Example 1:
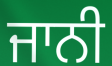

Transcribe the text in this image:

ਜਾਨੀ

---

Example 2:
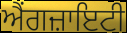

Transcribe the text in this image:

ਐਂਗਜ਼ਾਇਟੀ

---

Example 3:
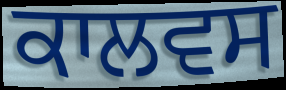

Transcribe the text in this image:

ਕਾਲਵਸ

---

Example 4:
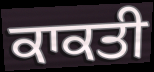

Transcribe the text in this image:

ਕਾਕਤੀ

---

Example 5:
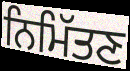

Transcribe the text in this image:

ਨਿਮਿੱਤਣ